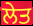
ਲੇਤ